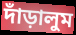
দাঁড়ালুম